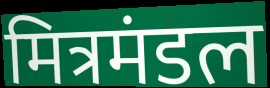
मित्रमंडल